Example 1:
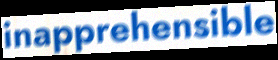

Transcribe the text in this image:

inapprehensible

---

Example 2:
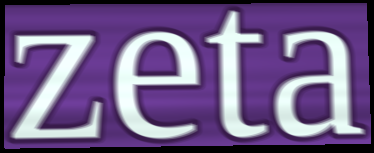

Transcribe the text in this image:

zeta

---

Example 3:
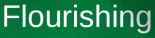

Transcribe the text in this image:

Flourishing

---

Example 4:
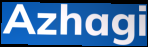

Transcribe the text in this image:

Azhagi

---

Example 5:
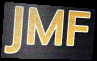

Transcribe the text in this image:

JMF